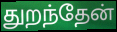
துறந்தேன்